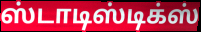
ஸ்டாடிஸ்டிக்ஸ்